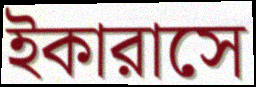
ইকারাসে